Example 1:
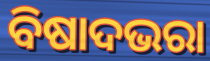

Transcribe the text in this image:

ବିଷାଦଭରା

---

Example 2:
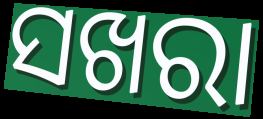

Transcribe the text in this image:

ସଖରା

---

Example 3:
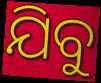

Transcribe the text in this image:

ଯିବୁ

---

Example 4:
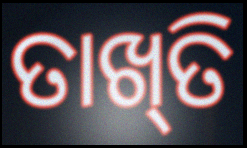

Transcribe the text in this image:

ତାଖ୍‍ତି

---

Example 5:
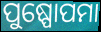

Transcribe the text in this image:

ପୁଷ୍ପୋପମା